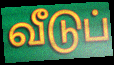
வீடுப்